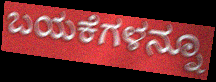
ಬಯಕೆಗಳನ್ನೂ